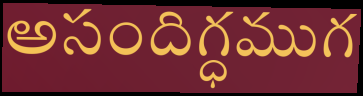
అసందిగ్ధముగ